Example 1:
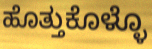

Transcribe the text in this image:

ಹೊತ್ತುಕೊಳ್ಳೊ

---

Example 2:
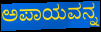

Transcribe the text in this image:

ಅಪಾಯವನ್ನ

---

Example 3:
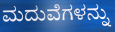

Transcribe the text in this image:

ಮದುವೆಗಳನ್ನು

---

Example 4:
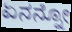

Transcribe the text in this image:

ಏನನ್ನೋ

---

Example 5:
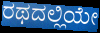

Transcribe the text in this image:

ರಥದಲ್ಲಿಯೇ